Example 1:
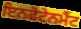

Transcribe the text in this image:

ਇਨਫੋਟੇਨਮੈਂਟ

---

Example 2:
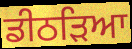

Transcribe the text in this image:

ਡੀਠੜਿਆ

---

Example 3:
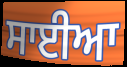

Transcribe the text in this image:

ਸਾਈਆ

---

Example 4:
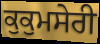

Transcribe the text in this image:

ਕੁਕੁਮਸੇਰੀ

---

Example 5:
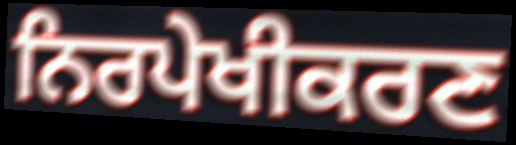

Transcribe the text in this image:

ਨਿਰਪੇਖੀਕਰਣ